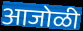
आजोळी